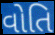
વોતિ